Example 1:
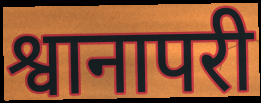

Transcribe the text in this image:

श्वानापरी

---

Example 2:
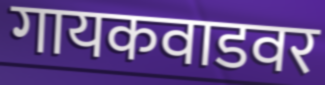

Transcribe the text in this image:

गायकवाडवर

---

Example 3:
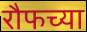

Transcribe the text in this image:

रौफच्या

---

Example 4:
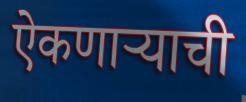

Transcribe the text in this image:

ऐकणार्‍याची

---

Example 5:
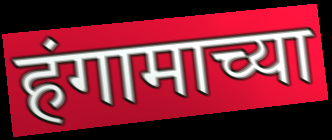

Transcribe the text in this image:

हंगामाच्या